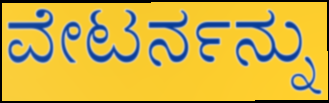
ವೇಟರ್ನನ್ನು